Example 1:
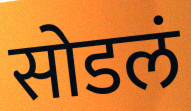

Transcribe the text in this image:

सोडलं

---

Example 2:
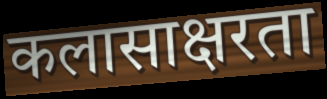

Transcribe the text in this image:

कलासाक्षरता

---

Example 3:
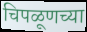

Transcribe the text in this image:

चिपळूणच्या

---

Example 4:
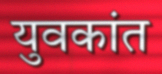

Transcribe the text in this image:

युवकांत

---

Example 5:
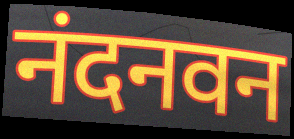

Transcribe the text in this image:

नंदनवन